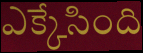
ఎక్కేసింది